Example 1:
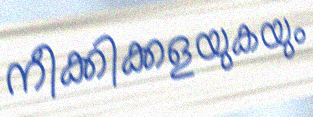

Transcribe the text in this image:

നീക്കിക്കളയുകയും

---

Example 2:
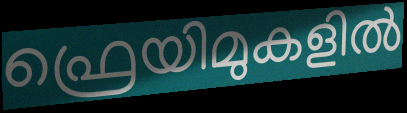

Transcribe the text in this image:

ഫ്രെയിമുകളിൽ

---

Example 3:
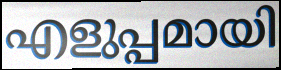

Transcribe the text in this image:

എളുപ്പമായി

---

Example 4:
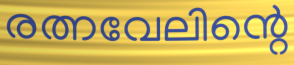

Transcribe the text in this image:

രത്നവേലിന്റെ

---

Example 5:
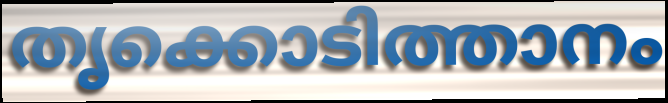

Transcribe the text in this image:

തൃക്കൊടിത്താനം